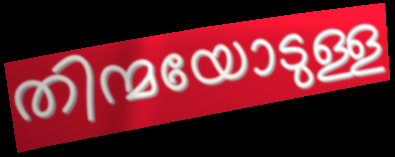
തിന്മയോടുള്ള